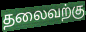
தலைவற்கு